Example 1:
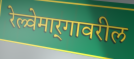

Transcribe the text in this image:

रेल्वेमार्गावरील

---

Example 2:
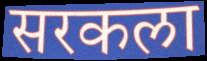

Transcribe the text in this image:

सरकला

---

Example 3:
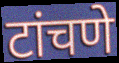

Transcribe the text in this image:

टांचणे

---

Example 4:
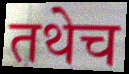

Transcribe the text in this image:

तथेच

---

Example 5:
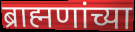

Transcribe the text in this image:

ब्राह्मणांच्या